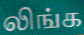
லிங்க